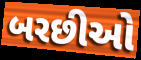
બરછીઓ